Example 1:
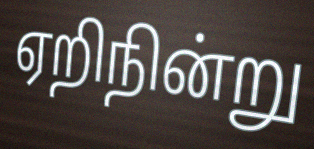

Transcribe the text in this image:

ஏறிநின்று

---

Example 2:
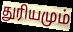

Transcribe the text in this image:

துரியமும்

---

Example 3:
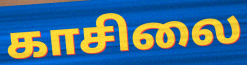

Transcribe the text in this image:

காசிலை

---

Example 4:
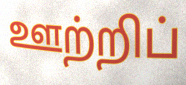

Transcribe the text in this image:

ஊற்றிப்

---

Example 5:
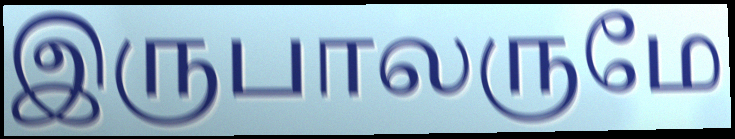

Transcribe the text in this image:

இருபாலருமே